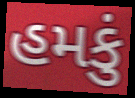
હમકું